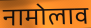
नामोलाव